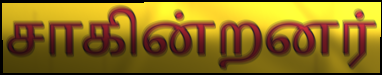
சாகின்றனர்